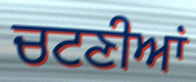
ਚਟਣੀਆਂ